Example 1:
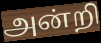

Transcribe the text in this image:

அன்றி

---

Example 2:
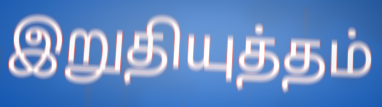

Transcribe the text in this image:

இறுதியுத்தம்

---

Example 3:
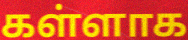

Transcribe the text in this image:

கள்ளாக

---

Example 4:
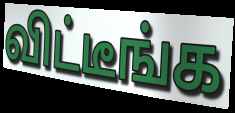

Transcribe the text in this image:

விட்டீங்க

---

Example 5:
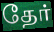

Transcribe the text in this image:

தேர்